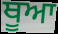
ਥੂਆ